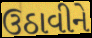
ઉઠાવીને